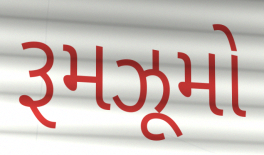
રૂમઝૂમો